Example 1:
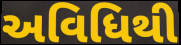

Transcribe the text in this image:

અવિધિથી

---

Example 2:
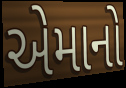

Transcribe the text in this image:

એમાનો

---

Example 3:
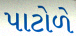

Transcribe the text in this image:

પાટોળે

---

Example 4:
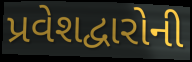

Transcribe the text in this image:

પ્રવેશદ્વારોની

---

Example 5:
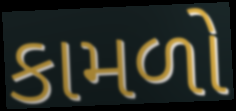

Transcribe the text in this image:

કામળો